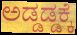
ಅಡ್ಡಡ್ಡಕ್ಕೆ